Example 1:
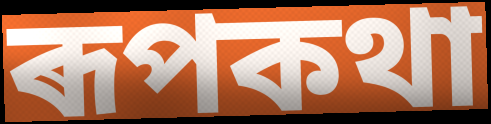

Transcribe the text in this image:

ৰূপকথা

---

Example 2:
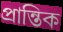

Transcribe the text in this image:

প্ৰান্তিক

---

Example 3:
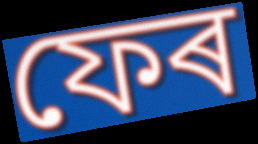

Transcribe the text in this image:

ফেৰ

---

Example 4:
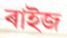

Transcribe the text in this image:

ৰাইজ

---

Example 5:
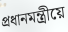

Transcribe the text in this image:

প্ৰধানমন্ত্ৰীয়ে